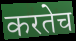
करतेच